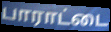
பாராட்டை